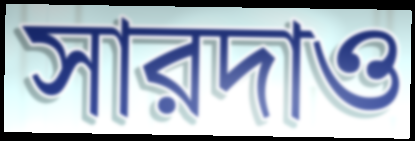
সারদাও